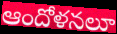
ఆందోళనలూ